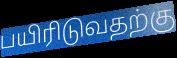
பயிரிடுவதற்கு